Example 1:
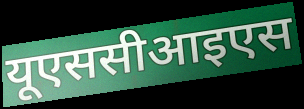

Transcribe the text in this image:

यूएससीआइएस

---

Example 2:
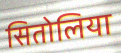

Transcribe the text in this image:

सितोलिया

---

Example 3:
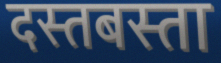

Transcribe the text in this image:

दस्तबस्ता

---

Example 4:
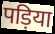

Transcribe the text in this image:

पड़िया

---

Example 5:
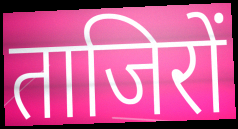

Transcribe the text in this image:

ताजिरों